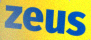
zeus